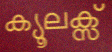
ക്യൂലക്സ്